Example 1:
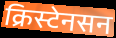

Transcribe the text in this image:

क्रिस्टेनसन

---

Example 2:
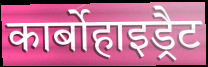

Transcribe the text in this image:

कार्बोहाइड्रैट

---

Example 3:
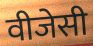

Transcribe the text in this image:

वीजेसी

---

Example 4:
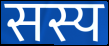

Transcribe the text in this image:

सस्य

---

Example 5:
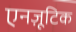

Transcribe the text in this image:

एनज़ूटिक